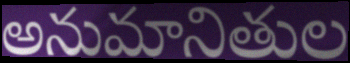
అనుమానితుల